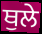
ਥੁਲੇ